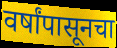
वर्षांपासूनचा